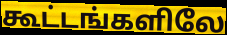
கூட்டங்களிலே